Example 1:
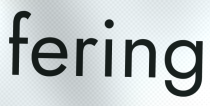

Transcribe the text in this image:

fering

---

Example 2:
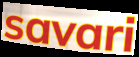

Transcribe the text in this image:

savari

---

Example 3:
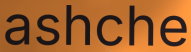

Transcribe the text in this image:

ashche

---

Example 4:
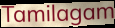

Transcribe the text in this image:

Tamilagam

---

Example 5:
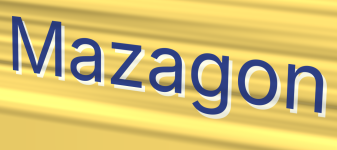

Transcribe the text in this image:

Mazagon